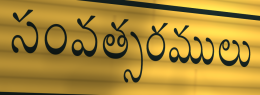
సంవత్సరములు